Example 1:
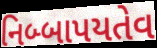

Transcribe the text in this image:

નિબ્બાપયતેવ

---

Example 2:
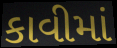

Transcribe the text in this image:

કાવીમાં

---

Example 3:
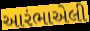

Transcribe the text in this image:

આરંભાએલી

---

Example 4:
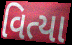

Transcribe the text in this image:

વિત્યા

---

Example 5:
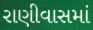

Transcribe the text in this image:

રાણીવાસમાં